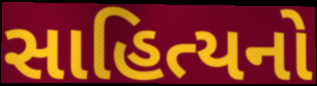
સાહિત્યનો